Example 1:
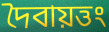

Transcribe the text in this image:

দৈবায়ত্তং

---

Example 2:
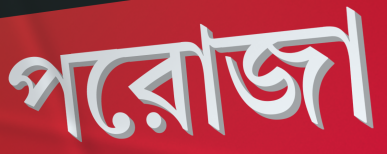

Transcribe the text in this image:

পরোজা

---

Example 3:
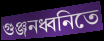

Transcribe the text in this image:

গুঞ্জনধ্বনিতে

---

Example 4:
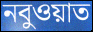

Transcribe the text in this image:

নবুওয়াত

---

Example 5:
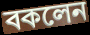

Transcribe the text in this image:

বকলেন